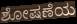
ಶೋಷಣೆಯ